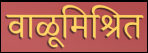
वाळूमिश्रित